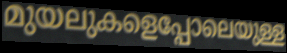
മുയലുകളെപ്പോലെയുള്ള